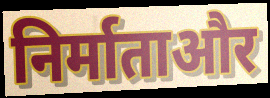
निर्माताऔर